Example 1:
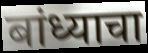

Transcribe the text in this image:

बांध्याचा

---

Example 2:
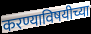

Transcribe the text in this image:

करण्याविषयीच्या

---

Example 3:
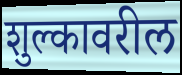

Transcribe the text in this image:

शुल्कावरील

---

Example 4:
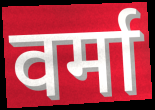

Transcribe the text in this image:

वर्मा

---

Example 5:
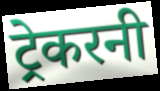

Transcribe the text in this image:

ट्रेकरनी